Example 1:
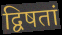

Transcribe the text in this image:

द्विषतां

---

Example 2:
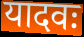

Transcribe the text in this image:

यादवः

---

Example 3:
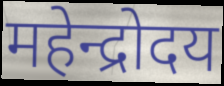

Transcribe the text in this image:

महेन्द्रोदय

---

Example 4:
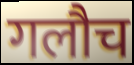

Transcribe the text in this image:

गलौच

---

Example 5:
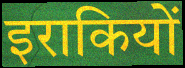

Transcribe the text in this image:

इराकियों